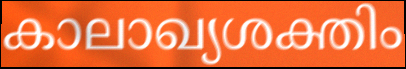
കാലാഖ്യശക്തിം